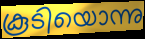
കൂടിയൊന്നു